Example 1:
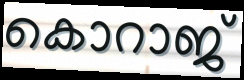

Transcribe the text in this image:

കൊറാജ്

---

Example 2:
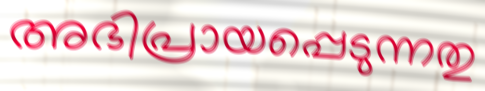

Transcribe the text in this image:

അഭിപ്രായപ്പെടുന്നതു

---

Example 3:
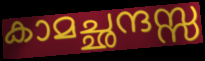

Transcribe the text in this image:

കാമച്ഛന്ദസ്സ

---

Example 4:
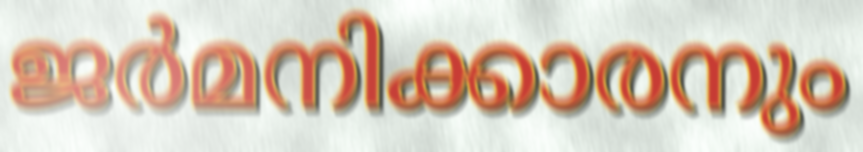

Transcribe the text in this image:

ജർമനിക്കാരനും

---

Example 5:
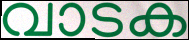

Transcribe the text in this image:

വാടക